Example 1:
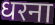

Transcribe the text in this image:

धरना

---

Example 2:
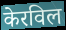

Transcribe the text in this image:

केरविल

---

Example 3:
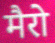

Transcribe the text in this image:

मैरो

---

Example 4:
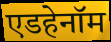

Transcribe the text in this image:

एडहेनॉम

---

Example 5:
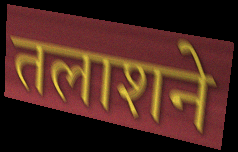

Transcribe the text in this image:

तलाशने